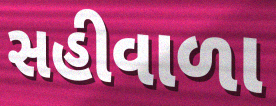
સહીવાળા